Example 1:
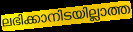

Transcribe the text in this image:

ലഭിക്കാനിടയില്ലാത്ത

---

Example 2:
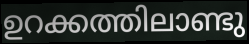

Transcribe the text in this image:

ഉറക്കത്തിലാണ്ടു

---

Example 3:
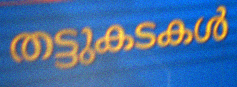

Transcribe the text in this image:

തട്ടുകടകൾ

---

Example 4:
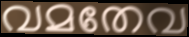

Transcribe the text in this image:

വമതേവ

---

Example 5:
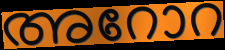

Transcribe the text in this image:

അറോറ